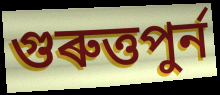
গুৰুত্তপুৰ্ন